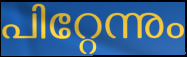
പിറ്റേന്നും